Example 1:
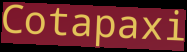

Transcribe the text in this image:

Cotapaxi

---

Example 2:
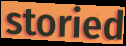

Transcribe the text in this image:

storied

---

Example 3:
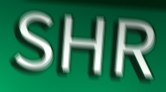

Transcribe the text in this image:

SHR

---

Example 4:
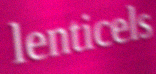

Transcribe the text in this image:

lenticels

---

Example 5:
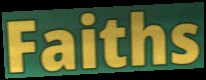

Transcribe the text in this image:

Faiths